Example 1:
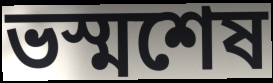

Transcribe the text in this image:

ভস্মশেষ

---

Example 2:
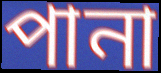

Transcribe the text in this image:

পানা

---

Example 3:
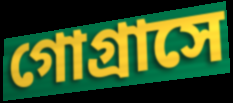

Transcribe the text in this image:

গোগ্রাসে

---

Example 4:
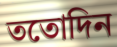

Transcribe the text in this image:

ততোদিন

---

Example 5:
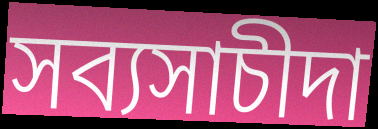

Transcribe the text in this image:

সব্যসাচীদা